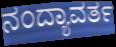
ನಂದ್ಯಾವರ್ತ